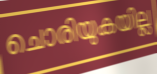
ചൊരിയുകയില്ല